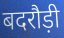
बदरौड़ी